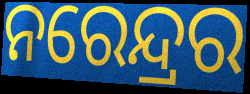
ନରେନ୍ଦ୍ରର